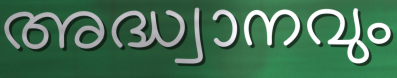
അദ്ധ്വാനവും